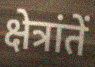
क्षेत्रांतें